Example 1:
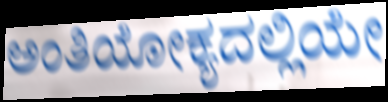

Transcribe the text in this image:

ಅಂತಿಯೋಕ್ಯದಲ್ಲಿಯೇ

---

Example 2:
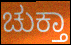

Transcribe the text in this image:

ಚುಕ್ತಾ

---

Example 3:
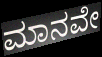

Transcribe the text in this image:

ಮಾನವೇ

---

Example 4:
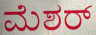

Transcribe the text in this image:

ಮೆಶರ್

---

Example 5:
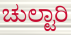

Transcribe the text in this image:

ಚುಲ್ಟಾರಿ